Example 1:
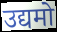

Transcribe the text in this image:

उद्यमो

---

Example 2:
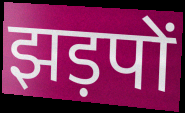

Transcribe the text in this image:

झड़पों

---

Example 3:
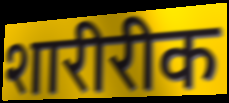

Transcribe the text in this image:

शारीरीक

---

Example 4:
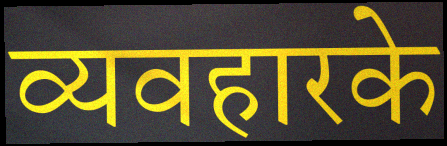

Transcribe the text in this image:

व्यवहारके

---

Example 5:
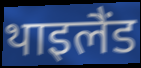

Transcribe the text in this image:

थाइलैंड